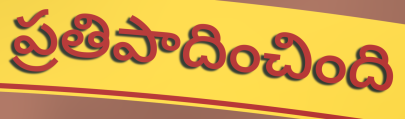
ప్రతిపాదించింది